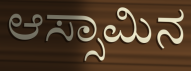
ಆಸ್ಸಾಮಿನ